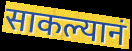
साकल्यानं